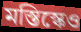
মস্তিস্কেও